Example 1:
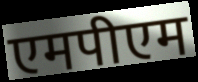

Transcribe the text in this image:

एमपीएम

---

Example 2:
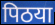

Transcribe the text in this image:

पिठया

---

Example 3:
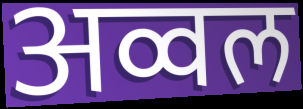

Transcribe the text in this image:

अव्वल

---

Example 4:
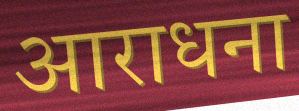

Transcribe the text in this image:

आराधना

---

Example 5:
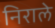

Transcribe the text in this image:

निराले